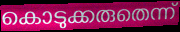
കൊടുക്കരുതെന്ന്